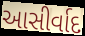
આસીર્વાદ